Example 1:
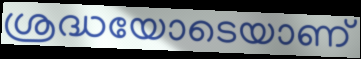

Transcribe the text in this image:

ശ്രദ്ധയോടെയാണ്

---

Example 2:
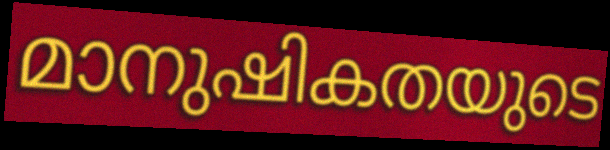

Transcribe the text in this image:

മാനുഷികതയുടെ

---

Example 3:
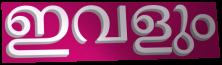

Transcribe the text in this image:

ഇവളും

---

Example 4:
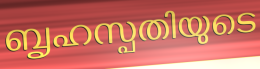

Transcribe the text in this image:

ബൃഹസ്പതിയുടെ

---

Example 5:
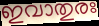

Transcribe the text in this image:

ഇവാതുരഃ